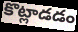
కొట్లాడడం